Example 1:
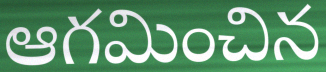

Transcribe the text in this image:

ఆగమించిన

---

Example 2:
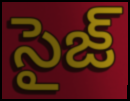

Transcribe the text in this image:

సైజ్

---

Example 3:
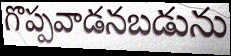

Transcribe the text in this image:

గొప్పవాడనబడును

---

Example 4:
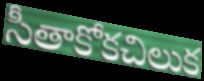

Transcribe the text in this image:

సీతాకోకచిలుక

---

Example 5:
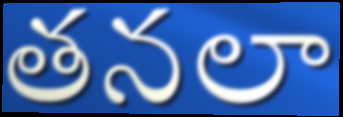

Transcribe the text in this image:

తనలా